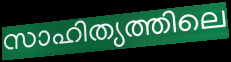
സാഹിത്യത്തിലെ